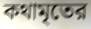
কথামৃতের